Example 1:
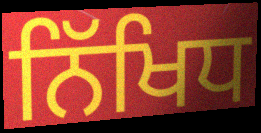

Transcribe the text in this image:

ਨਿੱਖਿਧ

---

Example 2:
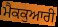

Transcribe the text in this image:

ਮੈਕਕੁਆਰੀ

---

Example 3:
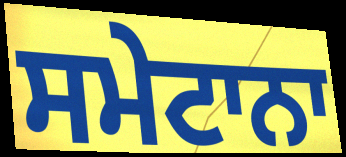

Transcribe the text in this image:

ਸਮੇਟਾਨਾ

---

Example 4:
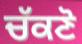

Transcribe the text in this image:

ਚੱਕਣੋ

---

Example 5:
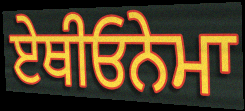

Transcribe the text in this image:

ਏਥੀਓਨੇਮਾ